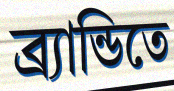
ব্র্যান্ডিতে